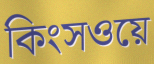
কিংসওয়ে